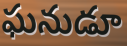
ఘనుడూ